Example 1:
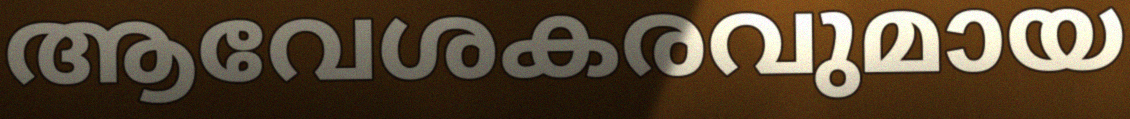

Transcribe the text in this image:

ആവേശകരവുമായ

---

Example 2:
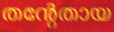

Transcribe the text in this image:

തന്റേതായ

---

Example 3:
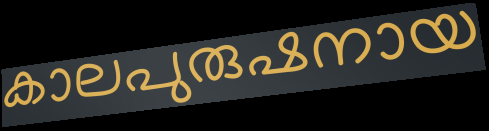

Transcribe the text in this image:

കാലപുരുഷനായ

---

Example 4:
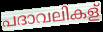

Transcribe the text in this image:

പദാവലികള്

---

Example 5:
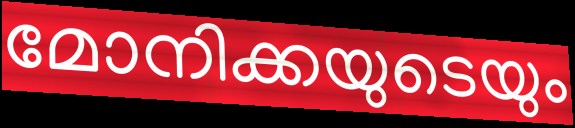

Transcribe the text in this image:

മോനിക്കയുടെയും